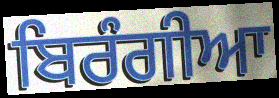
ਬਿਰੰਗੀਆ